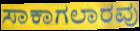
ಸಾಕಾಗಲಾರವು